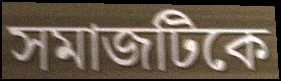
সমাজটিকে